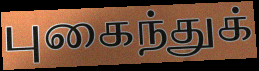
புகைந்துக்